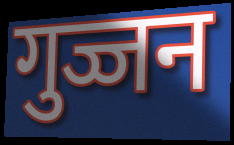
गुज्जन